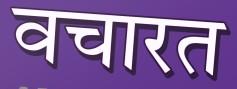
वचारत